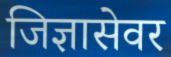
जिज्ञासेवर